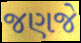
જણજે